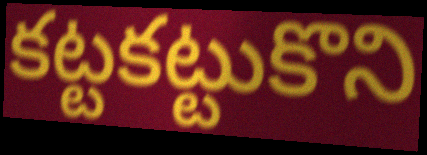
కట్టకట్టుకొని